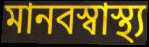
মানবস্বাস্থ্য